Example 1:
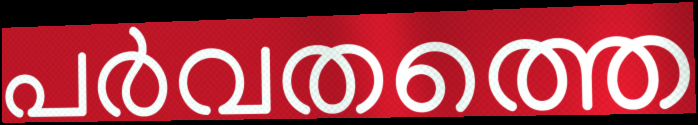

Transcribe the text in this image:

പർവതത്തെ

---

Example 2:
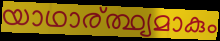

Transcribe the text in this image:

യാഥാര്ത്ഥ്യമാകും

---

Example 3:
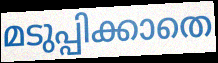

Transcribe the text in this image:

മടുപ്പിക്കാതെ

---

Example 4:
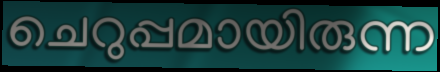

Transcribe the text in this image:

ചെറുപ്പമായിരുന്ന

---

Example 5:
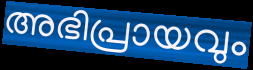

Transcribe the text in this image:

അഭിപ്രായവും